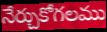
నేర్చుకోగలము